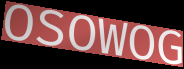
OSOWOG